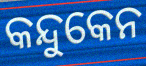
କନ୍ଦୁକେନ